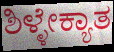
ಶಿಳ್ಳೇಕ್ಯಾತ